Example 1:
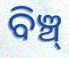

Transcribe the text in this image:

ବିଞ୍ଚ୍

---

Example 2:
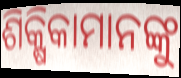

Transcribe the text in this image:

ଶିକ୍ଷିକାମାନଙ୍କୁ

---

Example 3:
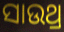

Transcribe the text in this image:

ସାଉଥ୍ର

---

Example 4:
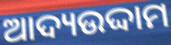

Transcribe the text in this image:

ଆଦ୍ୟଉଦ୍ଦାମ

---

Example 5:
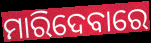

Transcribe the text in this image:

ମାରିଦେବାରେ